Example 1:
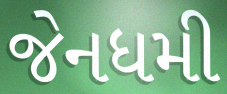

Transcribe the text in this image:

જેનધમી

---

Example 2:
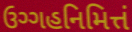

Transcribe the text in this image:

ઉગ્ગહનિમિત્તં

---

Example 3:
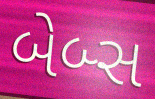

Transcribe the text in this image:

બેબ્સ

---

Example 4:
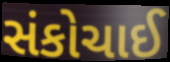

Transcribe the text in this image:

સંકોચાઈ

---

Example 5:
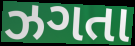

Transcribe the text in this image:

ઝગતા